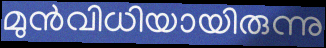
മുൻവിധിയായിരുന്നു